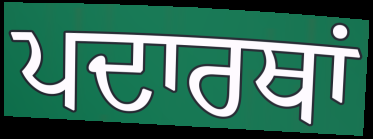
ਪਦਾਰਥਾਂ